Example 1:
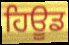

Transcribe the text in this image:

ਹਿਊਡ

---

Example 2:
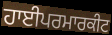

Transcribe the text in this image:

ਹਾਈਪਰਮਾਰਕੀਟ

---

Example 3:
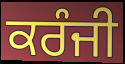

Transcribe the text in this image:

ਕਰੰਜੀ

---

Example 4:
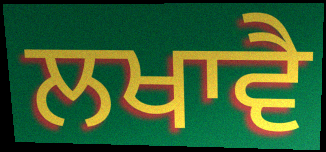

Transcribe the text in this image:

ਲਖਾਵੈ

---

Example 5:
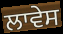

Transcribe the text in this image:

ਲਾਵੇਸ